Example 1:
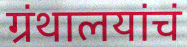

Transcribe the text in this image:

ग्रंथालयांचं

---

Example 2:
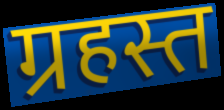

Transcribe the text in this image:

ग्रहस्त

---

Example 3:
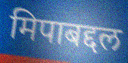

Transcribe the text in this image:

मिपाबद्दल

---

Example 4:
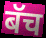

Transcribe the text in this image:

बॅच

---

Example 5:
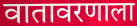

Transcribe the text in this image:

वातावरणाला